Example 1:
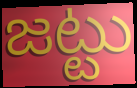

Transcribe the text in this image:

జట్టు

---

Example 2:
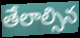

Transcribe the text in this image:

తేలాల్సిన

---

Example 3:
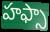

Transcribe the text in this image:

హఫ్సా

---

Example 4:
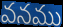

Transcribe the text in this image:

వనము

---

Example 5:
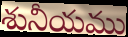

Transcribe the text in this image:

శునీయము